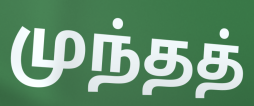
முந்தத்